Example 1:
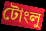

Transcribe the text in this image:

টোংলু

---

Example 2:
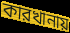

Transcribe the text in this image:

কারখানায়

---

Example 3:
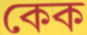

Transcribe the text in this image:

কেক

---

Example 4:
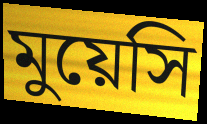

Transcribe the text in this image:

মুয়েসি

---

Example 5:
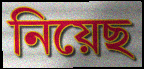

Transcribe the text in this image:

নিয়েছ